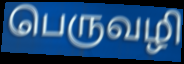
பெருவழி